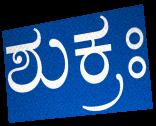
ಶುಕ್ರಃ